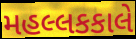
મહલ્લકકાલે